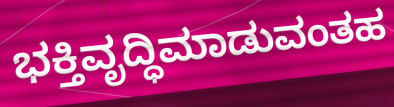
ಭಕ್ತಿವೃದ್ಧಿಮಾಡುವಂತಹ